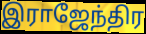
இராஜேந்திர